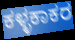
ಕಳ್ಳಕಾಕರ